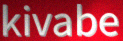
kivabe